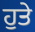
ਹੁਤੇ